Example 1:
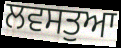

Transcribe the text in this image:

ਲਵਸਤੁਆ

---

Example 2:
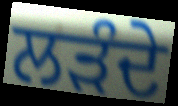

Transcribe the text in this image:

ਲੜੰਦੇ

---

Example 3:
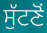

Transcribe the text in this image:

ਸੁੱਟਣੋਂ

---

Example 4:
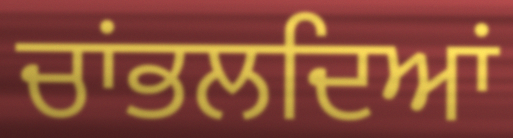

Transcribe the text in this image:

ਚਾਂਭਲਦਿਆਂ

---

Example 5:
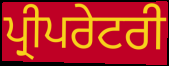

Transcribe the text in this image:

ਪ੍ਰੀਪਰੇਟਰੀ